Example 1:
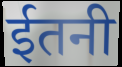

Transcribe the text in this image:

ईतनी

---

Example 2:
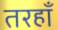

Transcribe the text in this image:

तरहाँ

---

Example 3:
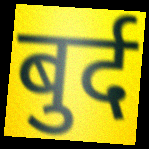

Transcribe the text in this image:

बुर्द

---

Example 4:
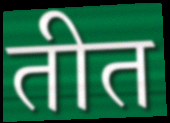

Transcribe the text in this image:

तीत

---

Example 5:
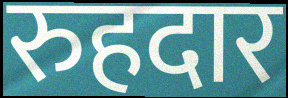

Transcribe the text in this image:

रुहदार